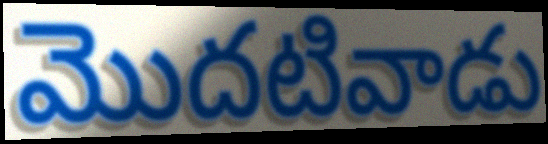
మొదటివాడు